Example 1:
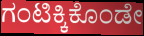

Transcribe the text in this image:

ಗಂಟಿಕ್ಕಿಕೊಂಡೇ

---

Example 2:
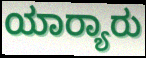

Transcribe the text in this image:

ಯಾರ್‍ಯಾರು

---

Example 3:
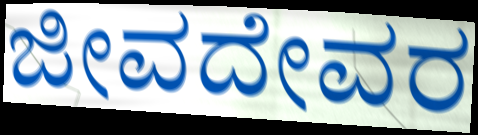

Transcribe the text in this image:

ಜೀವದೇವರ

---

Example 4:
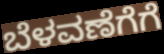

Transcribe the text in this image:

ಬೆಳವಣೆಗೆಗೆ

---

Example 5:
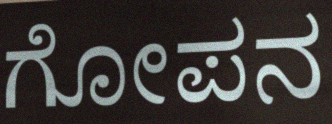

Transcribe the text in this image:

ಗೋಪನ